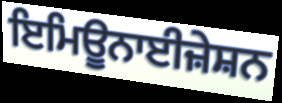
ਇਮਿਊਨਾਈਜ਼ੇਸ਼ਨ